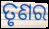
ତୃଣର